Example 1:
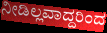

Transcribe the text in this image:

ನೀಡಿಲ್ಲವಾದ್ದರಿಂದ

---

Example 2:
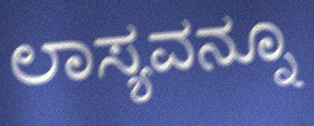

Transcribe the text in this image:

ಲಾಸ್ಯವನ್ನೂ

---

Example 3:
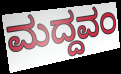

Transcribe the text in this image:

ಮದ್ದವಂ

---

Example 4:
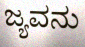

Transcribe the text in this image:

ಜ್ಯವನು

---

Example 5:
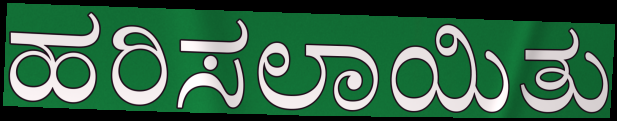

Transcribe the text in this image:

ಹರಿಸಲಾಯಿತು